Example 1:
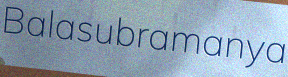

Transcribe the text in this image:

Balasubramanya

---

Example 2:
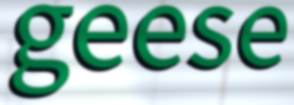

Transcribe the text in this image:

geese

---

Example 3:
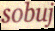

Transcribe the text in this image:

sobuj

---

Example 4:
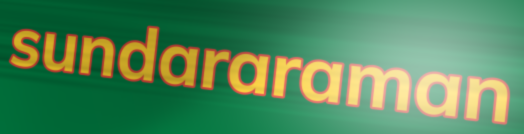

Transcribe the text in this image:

sundararaman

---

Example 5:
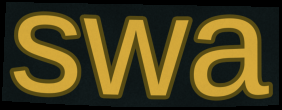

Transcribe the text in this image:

swa